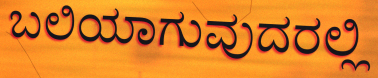
ಬಲಿಯಾಗುವುದರಲ್ಲಿ